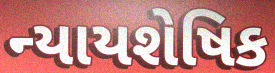
ન્યાયશેષિક